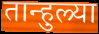
तान्हुल्या